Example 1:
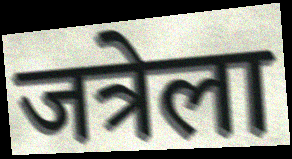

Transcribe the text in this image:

जत्रेला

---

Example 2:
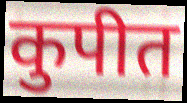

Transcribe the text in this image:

कुपीत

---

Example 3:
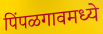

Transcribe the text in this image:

पिंपळगावमध्ये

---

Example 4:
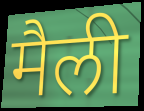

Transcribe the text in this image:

मैली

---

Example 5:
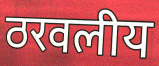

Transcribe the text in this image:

ठरवलीय